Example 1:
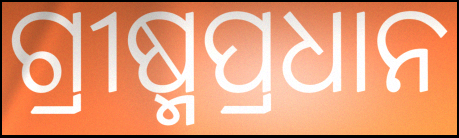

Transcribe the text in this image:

ଗ୍ରୀଷ୍ମପ୍ରଧାନ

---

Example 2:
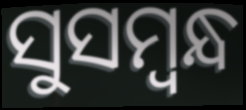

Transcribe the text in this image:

ସୁସମ୍ବନ୍ଧ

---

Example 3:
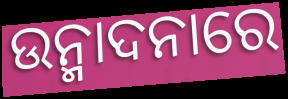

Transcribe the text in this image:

ଉନ୍ମାଦନାରେ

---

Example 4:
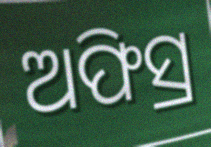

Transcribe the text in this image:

ଅଫିସ୍ର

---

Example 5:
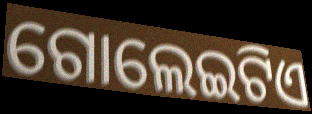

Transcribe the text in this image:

ଗୋଲେଇଟିଏ